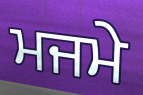
ਮਜਮੇ